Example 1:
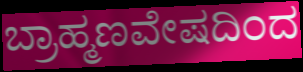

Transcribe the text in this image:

ಬ್ರಾಹ್ಮಣವೇಷದಿಂದ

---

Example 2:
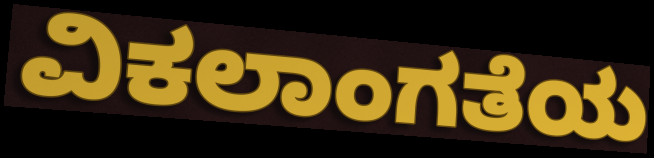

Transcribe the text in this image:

ವಿಕಲಾಂಗತೆಯ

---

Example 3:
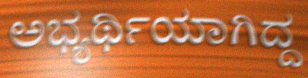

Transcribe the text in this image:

ಅಭ್ಯರ್ಥಿಯಾಗಿದ್ದ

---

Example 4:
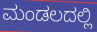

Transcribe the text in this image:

ಮಂಡಲದಲ್ಲಿ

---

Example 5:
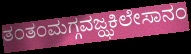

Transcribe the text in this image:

ತಂತಂಮಗ್ಗವಜ್ಝಕಿಲೇಸಾನಂ